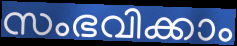
സംഭവിക്കാം